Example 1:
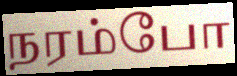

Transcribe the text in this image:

நரம்போ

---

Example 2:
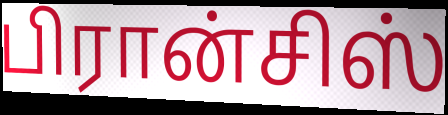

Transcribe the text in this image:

பிரான்சிஸ்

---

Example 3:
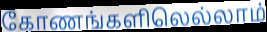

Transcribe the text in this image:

கோணங்களிலெல்லாம்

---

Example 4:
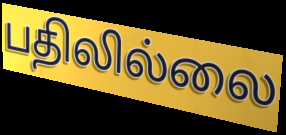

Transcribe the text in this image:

பதிலில்லை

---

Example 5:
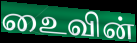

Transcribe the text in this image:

உைவின்